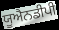
ਯੂਐਨਡੀਪੀ